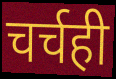
चर्चही